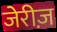
जेरीज़